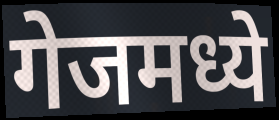
गेजमध्ये